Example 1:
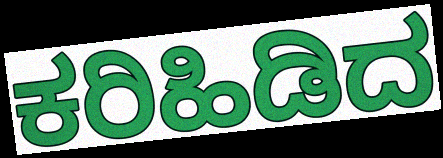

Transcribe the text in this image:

ಕರಿಹಿಡಿದ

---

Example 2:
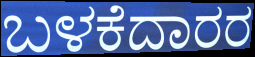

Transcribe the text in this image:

ಬಳಕೆದಾರರ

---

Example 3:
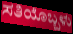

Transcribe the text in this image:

ಸತಿಯೊಬ್ಬಳು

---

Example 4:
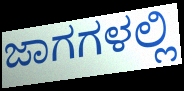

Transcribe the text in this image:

ಜಾಗಗಳಲ್ಲಿ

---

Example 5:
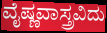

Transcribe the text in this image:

ವೈಷ್ಣವಾಸ್ತ್ರವಿದು